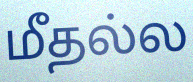
மீதல்ல